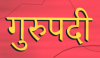
गुरुपदी